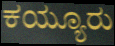
ಕಯ್ಯೂರು